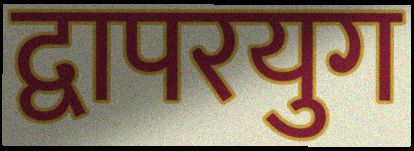
द्वापरयुग